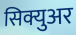
सिक्युअर